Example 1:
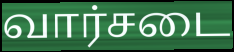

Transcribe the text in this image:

வார்சடை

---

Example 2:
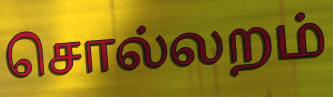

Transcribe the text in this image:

சொல்லறம்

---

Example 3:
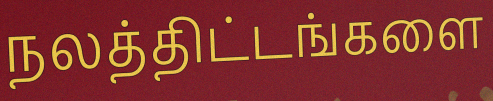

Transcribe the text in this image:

நலத்திட்டங்களை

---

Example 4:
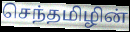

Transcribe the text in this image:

செந்தமிழின்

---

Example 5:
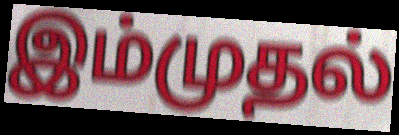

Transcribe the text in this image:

இம்முதல்